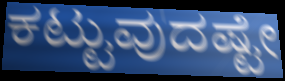
ಕಟ್ಟುವುದಷ್ಟೇ